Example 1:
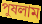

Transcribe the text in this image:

পুষলাম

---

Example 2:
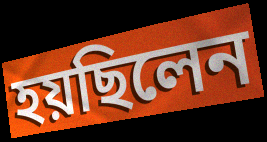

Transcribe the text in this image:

হয়ছিলেন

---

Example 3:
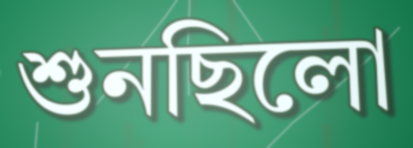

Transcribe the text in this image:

শুনছিলো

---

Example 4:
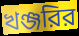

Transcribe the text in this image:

খঞ্জরির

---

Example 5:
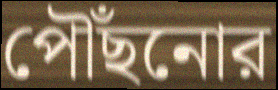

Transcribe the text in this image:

পৌঁছনোর